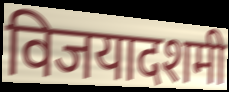
विजयादशमी